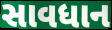
સાવધાન